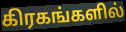
கிரகங்களில்